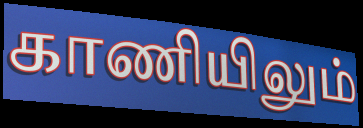
காணியிலும்